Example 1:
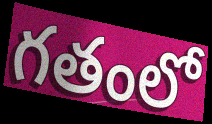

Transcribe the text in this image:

గతంలో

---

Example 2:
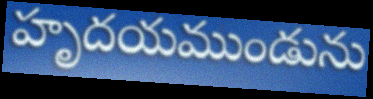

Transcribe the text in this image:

హృదయముండును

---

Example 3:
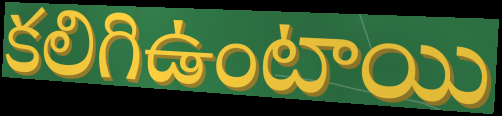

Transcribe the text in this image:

కలిగిఉంటాయి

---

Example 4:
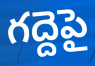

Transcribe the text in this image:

గద్దెపై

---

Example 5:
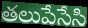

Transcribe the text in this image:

తలుపేసేసి